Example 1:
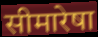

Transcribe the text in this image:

सीमारेषा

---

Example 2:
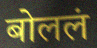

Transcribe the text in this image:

बोललं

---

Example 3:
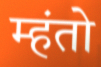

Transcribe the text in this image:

म्हंतो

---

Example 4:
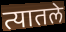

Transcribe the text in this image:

त्यातले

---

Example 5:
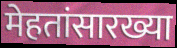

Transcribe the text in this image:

मेहतांसारख्या